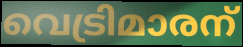
വെട്രിമാരന്